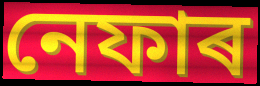
নেফাৰ